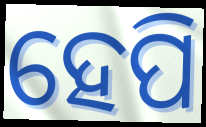
ହେପି